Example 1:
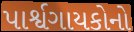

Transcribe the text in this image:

પાર્શ્વગાયકોનો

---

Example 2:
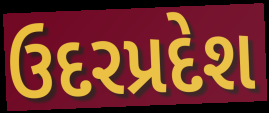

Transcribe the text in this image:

ઉદરપ્રદેશ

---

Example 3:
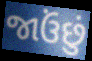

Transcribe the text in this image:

જાઉંછું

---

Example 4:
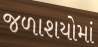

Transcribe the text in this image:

જળાશયોમાં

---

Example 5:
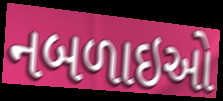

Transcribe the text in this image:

નબળાઇઓ